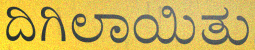
ದಿಗಿಲಾಯಿತು